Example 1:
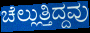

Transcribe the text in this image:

ಚೆಲ್ಲುತ್ತಿದ್ದವು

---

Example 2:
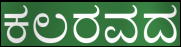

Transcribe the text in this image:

ಕಲರವದ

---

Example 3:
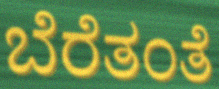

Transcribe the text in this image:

ಬೆರೆತಂತೆ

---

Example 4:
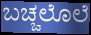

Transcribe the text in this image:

ಬಚ್ಚಲೊಲೆ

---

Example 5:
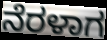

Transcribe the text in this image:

ನೆರಳಾಗ